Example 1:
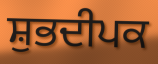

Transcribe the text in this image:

ਸ਼ੁਭਦੀਪਕ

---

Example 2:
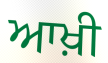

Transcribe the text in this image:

ਆਖ਼ੀ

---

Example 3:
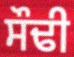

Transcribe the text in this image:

ਸੌਢੀ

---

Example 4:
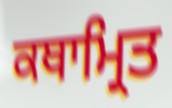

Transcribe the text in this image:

ਕਥਾਮ੍ਰਿਤ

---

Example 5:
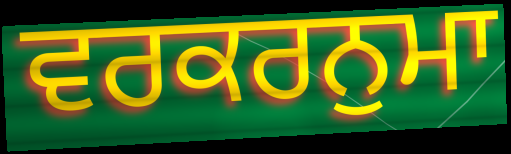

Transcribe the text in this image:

ਵਰਕਰਨੁਮਾ